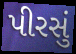
પીરસું